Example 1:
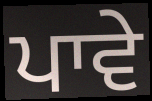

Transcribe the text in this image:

ਪਾਵੇ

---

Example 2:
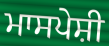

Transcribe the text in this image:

ਮਾਸਪੇਸ਼ੀ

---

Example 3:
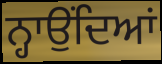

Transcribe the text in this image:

ਨ੍ਹਾਉਂਦਿਆਂ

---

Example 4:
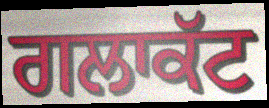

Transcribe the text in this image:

ਗਲਾਕੱਟ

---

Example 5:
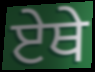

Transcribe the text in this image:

ਏਥੇ